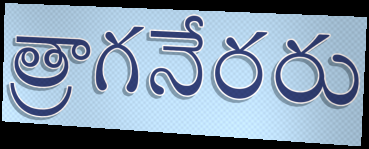
త్రాగనేరరు